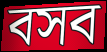
বসব